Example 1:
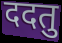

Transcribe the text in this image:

ददतु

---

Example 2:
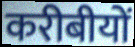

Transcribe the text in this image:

करीबीयों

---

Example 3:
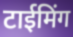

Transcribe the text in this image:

टाईमिंग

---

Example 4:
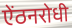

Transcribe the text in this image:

ऐंठनरोधी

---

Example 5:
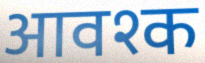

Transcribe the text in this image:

आवश्क